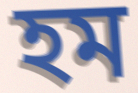
হম